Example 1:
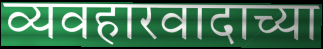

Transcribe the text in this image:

व्यवहारवादाच्या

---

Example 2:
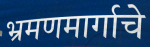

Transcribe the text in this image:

भ्रमणमार्गाचे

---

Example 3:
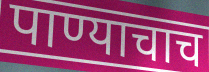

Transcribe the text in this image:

पाण्याचाच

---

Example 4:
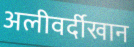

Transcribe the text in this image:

अलीवर्दीखान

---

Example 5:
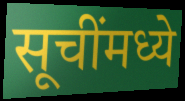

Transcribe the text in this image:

सूचींमध्ये